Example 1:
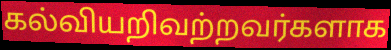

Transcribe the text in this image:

கல்வியறிவற்றவர்களாக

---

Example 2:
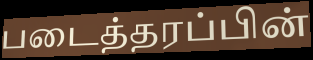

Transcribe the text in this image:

படைத்தரப்பின்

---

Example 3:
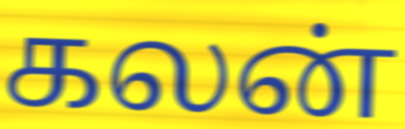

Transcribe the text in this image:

கலன்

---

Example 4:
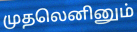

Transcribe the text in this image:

முதலெனினும்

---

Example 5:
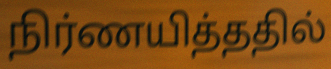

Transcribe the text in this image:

நிர்ணயித்ததில்